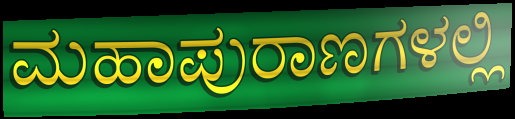
ಮಹಾಪುರಾಣಗಳಲ್ಲಿ